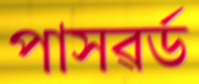
পাসৱৰ্ড